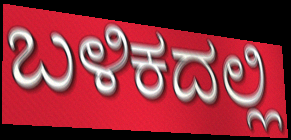
ಬಳಿಕದಲ್ಲಿ